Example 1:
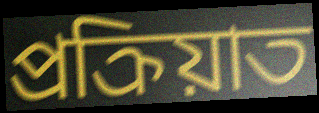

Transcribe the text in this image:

প্ৰক্ৰিয়াত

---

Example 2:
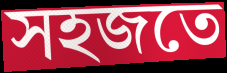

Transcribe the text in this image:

সহজতে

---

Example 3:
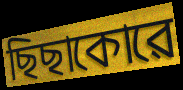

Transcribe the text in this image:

ছিছাকোৱে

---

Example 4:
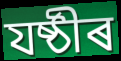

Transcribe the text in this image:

যষ্ঠীৰ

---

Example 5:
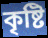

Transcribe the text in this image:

কৃষ্টি